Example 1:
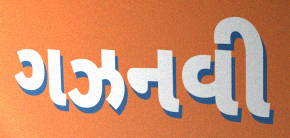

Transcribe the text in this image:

ગઝનવી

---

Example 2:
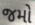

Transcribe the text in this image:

જમો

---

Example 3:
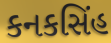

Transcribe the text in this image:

કનકસિંહ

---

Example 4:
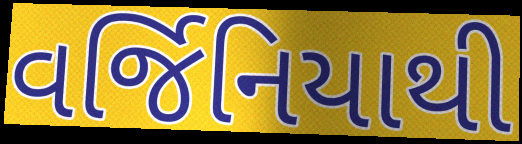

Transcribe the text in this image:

વર્જિનિયાથી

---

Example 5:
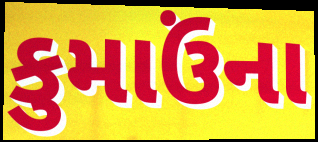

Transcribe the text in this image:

કુમાઉંના